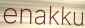
enakku